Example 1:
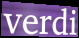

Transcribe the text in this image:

verdi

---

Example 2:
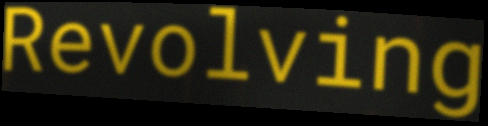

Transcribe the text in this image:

Revolving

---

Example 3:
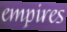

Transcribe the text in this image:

empires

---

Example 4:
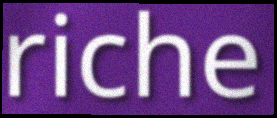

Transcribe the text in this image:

riche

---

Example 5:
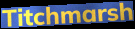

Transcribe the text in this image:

Titchmarsh